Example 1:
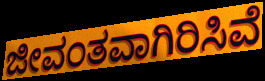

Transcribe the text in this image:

ಜೀವಂತವಾಗಿರಿಸಿವೆ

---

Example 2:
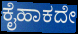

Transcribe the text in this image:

ಕೈಹಾಕದೇ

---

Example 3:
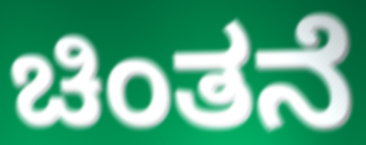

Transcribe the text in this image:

ಚಿಂತನೆ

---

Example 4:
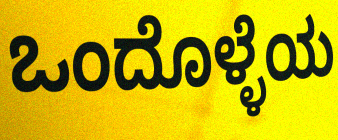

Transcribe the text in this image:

ಒಂದೊಳ್ಳೆಯ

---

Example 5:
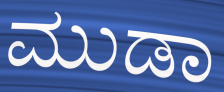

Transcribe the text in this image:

ಮುಡಾ